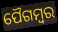
ପୈଗମ୍ବର